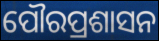
ପୌରପ୍ରଶାସନ